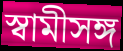
স্বামীসঙ্গ